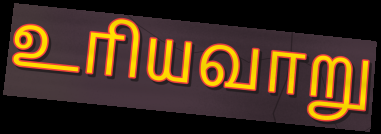
உரியவாறு